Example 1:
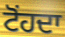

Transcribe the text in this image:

ਟੋਂਹਦਾ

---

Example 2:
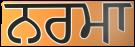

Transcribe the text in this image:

ਨਰਮਾ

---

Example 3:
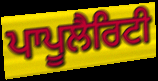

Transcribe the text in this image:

ਪਾਪੂਲੈਰਿਟੀ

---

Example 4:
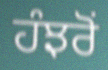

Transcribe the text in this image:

ਹੰਝਰੋਂ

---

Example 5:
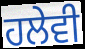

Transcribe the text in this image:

ਹਲੇਵੀ